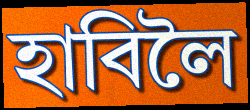
হাবিলৈ